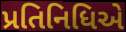
પ્રતિનિધિએ